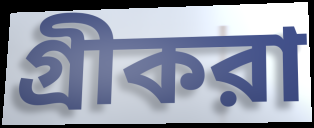
গ্রীকরা